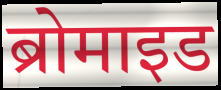
ब्रोमाइड